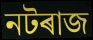
নটৰাজ